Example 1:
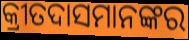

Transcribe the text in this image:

କ୍ରୀତଦାସମାନଙ୍କର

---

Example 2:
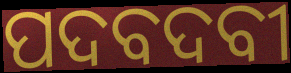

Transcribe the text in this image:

ପଦବଦବୀ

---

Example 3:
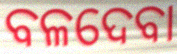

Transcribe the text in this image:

ବଳଦେବା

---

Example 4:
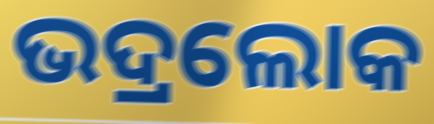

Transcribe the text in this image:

ଭଦ୍ରଲୋକ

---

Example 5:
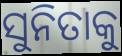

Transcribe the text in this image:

ସୁନିତାକୁ